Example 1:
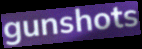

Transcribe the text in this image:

gunshots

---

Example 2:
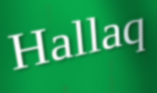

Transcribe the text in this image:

Hallaq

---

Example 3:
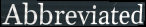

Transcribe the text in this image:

Abbreviated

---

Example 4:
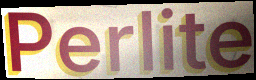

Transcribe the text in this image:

Perlite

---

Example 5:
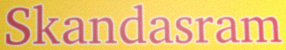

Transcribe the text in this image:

Skandasram